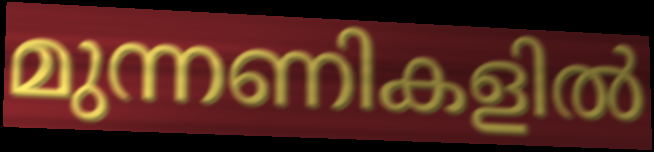
മുന്നണികളിൽ